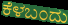
ಕೆಳಬಂದು